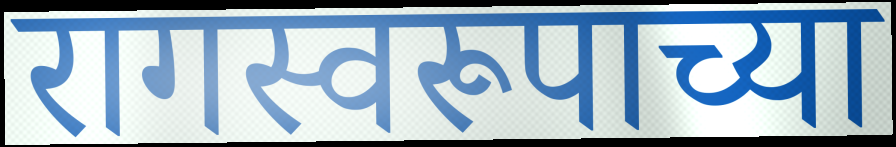
रागस्वरूपाच्या